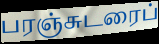
பரஞ்சுடரைப்